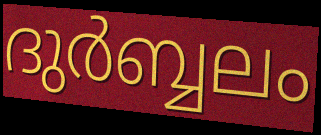
ദുർബ്ബലം